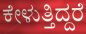
ಕೇಳುತ್ತಿದ್ದರೆ